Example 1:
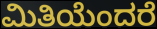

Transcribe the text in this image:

ಮಿತಿಯೆಂದರೆ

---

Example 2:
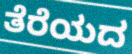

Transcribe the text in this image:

ತೆರೆಯದ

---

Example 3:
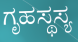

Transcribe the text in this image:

ಗೃಹಸ್ಥಸ್ಯ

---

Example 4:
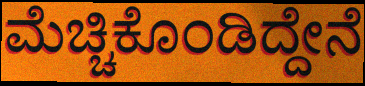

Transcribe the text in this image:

ಮೆಚ್ಚಿಕೊಂಡಿದ್ದೇನೆ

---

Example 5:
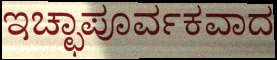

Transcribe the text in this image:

ಇಚ್ಛಾಪೂರ್ವಕವಾದ